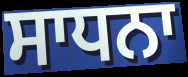
ਸਾਧਨਾ